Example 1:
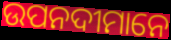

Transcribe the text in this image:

ଉପନଦୀମାନେ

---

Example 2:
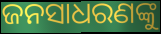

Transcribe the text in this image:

ଜନସାଧରଣଙ୍କୁ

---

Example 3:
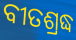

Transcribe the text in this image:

ବୀତଶ୍ରଦ୍ଧ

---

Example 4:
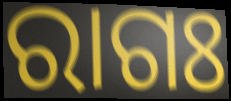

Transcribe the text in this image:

ରାଗଃ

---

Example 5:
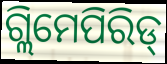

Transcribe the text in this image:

ଗ୍ଲିମେପିରିଡ୍